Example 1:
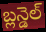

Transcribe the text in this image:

బ్లన్డెల్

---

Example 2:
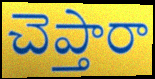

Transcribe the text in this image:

చెప్తారా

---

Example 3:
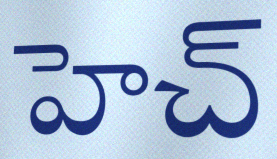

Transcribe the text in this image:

హెచ్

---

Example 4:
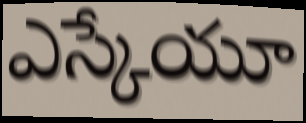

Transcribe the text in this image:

ఎస్కేయూ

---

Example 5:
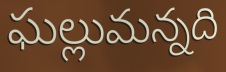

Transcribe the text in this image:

ఘల్లుమన్నది